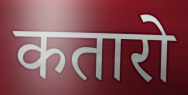
कतारो